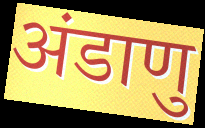
अंडाणु